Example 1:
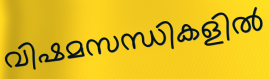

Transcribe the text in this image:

വിഷമസന്ധികളിൽ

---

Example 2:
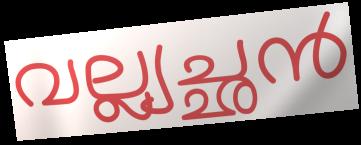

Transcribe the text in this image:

വല്ല്യച്ഛൻ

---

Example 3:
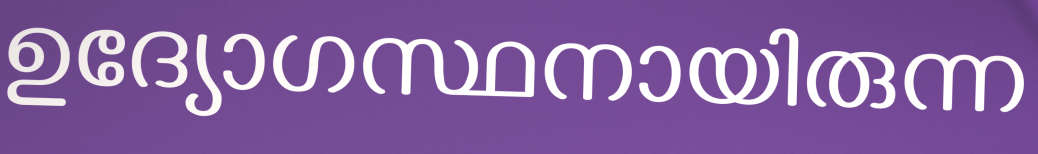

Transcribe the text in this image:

ഉദ്യോഗസ്ഥനായിരുന്ന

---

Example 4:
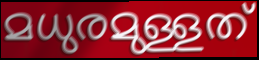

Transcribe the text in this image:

മധുരമുള്ളത്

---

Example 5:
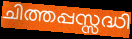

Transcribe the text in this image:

ചിത്തപ്പസ്സദ്ധി